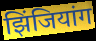
झिंजियांग